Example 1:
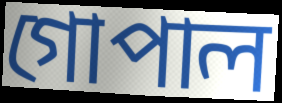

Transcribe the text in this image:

গোপাল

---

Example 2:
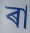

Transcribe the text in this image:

ৰা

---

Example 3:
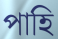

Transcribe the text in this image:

পাহি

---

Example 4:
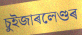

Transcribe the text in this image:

চুইজাৰলেণ্ডৰ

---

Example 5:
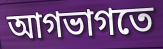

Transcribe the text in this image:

আগভাগতে